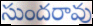
సుందరావు